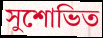
সুশোভিত